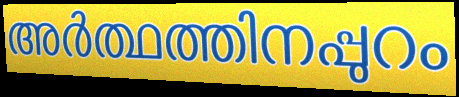
അർത്ഥത്തിനപ്പുറം